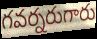
గవర్నరుగారు